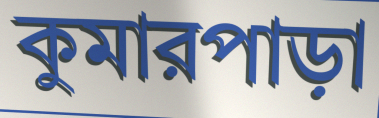
কুমারপাড়া